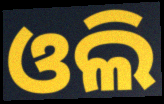
ଓଲି